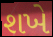
શખે